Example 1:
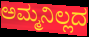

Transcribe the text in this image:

ಅಮ್ಮನಿಲ್ಲದ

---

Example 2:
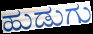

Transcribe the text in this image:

ಹುಡುಗು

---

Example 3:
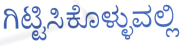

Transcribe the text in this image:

ಗಿಟ್ಟಿಸಿಕೊಳ್ಳುವಲ್ಲಿ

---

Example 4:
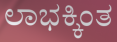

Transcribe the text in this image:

ಲಾಭಕ್ಕಿಂತ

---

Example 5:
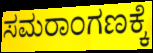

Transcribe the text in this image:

ಸಮರಾಂಗಣಕ್ಕೆ